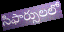
సిఫార్సులలో